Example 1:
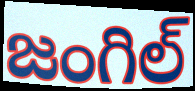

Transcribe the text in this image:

జంగిల్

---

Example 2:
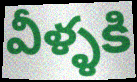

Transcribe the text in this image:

వీళ్ళకి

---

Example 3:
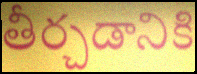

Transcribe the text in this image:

తీర్చడానికి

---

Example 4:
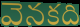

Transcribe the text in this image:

వెనకది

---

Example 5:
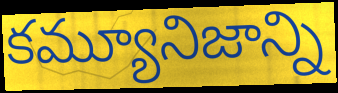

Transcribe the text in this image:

కమ్యూనిజాన్ని